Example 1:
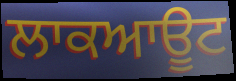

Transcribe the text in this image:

ਲਾਕਆਊਟ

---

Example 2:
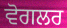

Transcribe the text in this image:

ਵੋਗਲਰ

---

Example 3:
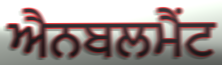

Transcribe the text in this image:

ਐਨਬਲਮੈਂਟ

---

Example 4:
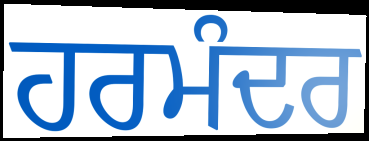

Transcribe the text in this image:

ਹਰਮੰਦਰ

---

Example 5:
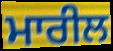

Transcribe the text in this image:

ਮਾਰੀਲ